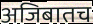
अजिबातच